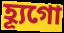
হ্যূগো